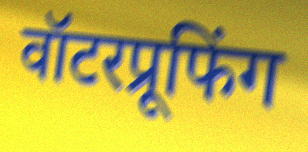
वॉटरप्रूफिंग